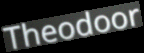
Theodoor